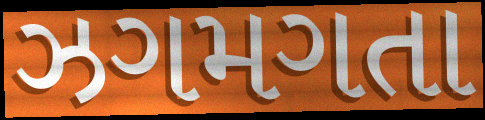
ઝગમગતા